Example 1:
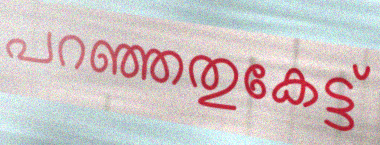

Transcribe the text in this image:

പറഞ്ഞതുകേട്ട്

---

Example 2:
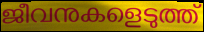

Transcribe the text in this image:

ജീവനുകളെടുത്ത്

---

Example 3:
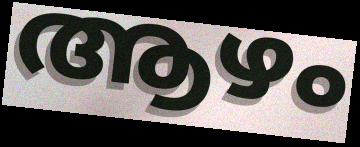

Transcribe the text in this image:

ആഴം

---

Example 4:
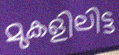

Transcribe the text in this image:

മുകളിലിട്ട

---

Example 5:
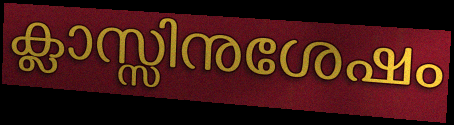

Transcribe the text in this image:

ക്ലാസ്സിനുശേഷം